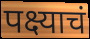
पक्ष्याचं